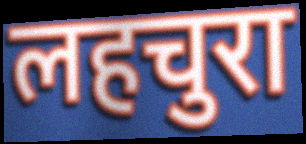
लहचुरा